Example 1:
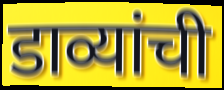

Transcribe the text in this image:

डाव्यांची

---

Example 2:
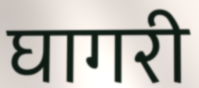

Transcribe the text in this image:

घागरी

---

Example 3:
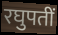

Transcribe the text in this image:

रघुपतीं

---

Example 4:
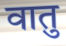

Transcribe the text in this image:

वातु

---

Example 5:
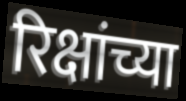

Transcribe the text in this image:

रिक्षांच्या